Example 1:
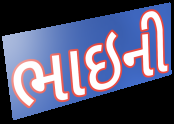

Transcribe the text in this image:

ભાઇની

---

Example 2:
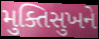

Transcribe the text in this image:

મુક્તિસુખને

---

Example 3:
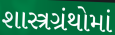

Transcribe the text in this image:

શાસ્ત્રગ્રંથોમાં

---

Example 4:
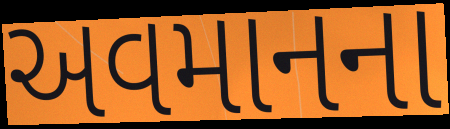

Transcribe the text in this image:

અવમાનના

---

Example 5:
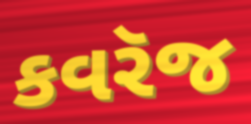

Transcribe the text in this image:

કવરૅજ